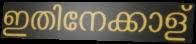
ഇതിനേക്കാള്